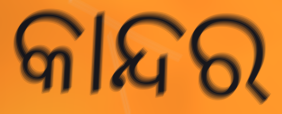
କାନ୍ଦର